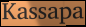
Kassapa